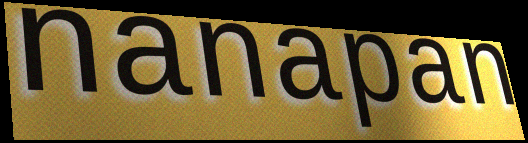
nanapan